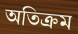
অতিক্ৰম